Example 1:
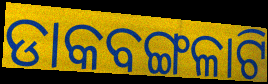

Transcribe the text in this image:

ଡାକବଙ୍ଗଳାଟି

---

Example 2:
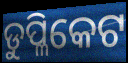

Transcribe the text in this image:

ଡୁପ୍ଳିକେଟ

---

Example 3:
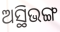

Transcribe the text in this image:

ଅସ୍ଥିଭଙ୍ଗ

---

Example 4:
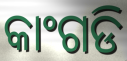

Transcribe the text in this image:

କାଂଗଡି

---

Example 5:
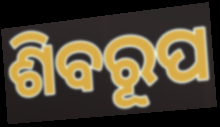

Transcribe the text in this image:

ଶିବରୂପ